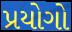
પ્રયોગો